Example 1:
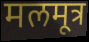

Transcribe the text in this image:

मलमूत्र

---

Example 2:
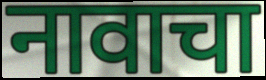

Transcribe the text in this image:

नावाचा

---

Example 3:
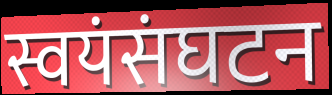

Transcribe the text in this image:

स्वयंसंघटन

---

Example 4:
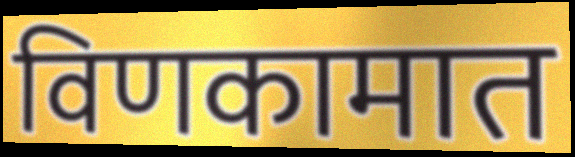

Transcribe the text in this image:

विणकामात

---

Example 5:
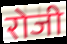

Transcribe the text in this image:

रोजी